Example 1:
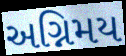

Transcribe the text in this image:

અગ્નિમય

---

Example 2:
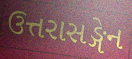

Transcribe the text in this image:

ઉત્તરાસઙ્ગેન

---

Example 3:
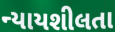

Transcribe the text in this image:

ન્યાયશીલતા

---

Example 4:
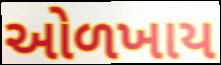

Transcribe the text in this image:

ઓળખાય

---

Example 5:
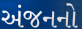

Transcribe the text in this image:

અંજનનો